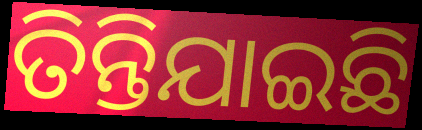
ତିନ୍ତିଯାଇଛି